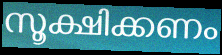
സൂക്ഷിക്കണം